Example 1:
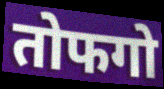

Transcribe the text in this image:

तोफगो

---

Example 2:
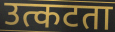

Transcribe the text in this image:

उत्कटता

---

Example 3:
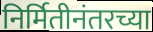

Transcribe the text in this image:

निर्मितीनंतरच्या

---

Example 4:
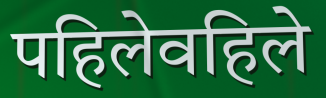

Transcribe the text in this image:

पहिलेवहिले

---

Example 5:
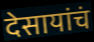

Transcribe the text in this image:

देसायांचं